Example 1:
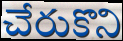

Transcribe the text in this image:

చేరుకొని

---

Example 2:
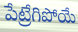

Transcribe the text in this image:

పేట్రేగిపోయే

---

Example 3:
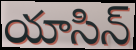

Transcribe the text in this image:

యాసిన్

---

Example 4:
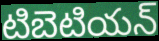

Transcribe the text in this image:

టిబెటియన్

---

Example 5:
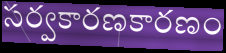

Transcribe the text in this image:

సర్వకారణకారణం